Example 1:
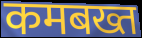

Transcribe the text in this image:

कमबख्त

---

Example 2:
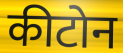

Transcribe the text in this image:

कीटोन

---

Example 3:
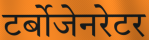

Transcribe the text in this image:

टर्बोजेनरेटर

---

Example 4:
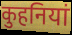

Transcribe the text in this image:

कुहनियां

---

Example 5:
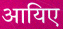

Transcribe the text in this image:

आयिए